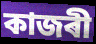
কাজৰী